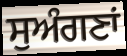
ਸੁਅੰਗਣਾਂ